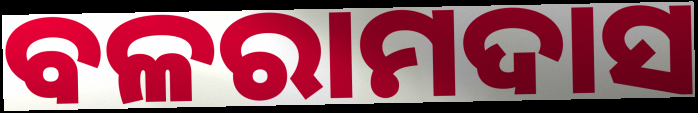
ବଳରାମଦାସ